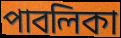
পাবলিকা